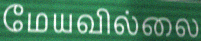
மேயவில்லை